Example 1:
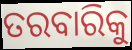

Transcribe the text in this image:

ତରବାରିକୁ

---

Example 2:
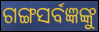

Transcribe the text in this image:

ଗଙ୍ଗସର୍ବଜ୍ଞଙ୍କୁ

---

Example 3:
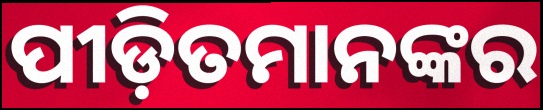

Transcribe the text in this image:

ପୀଡ଼ିତମାନଙ୍କର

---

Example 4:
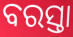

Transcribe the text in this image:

ବରସ୍ତା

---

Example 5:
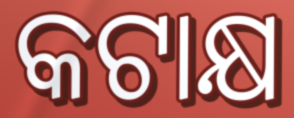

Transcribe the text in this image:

କଟାକ୍ଷ